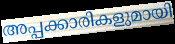
അപ്പക്കാരികളുമായി